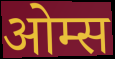
ओम्स